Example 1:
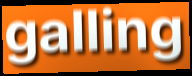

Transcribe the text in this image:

galling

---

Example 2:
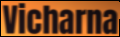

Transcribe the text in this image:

Vicharna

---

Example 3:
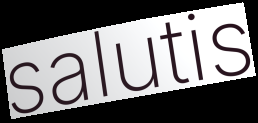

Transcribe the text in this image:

salutis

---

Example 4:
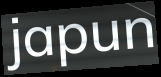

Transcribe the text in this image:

japun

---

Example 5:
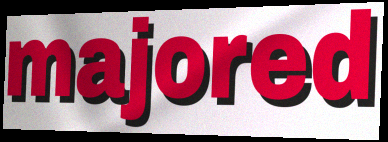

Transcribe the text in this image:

majored